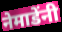
नेमाडेंनी